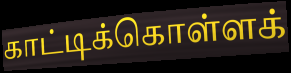
காட்டிக்கொள்ளக்